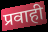
प्रवाही